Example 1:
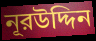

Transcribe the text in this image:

নূরউদ্দিন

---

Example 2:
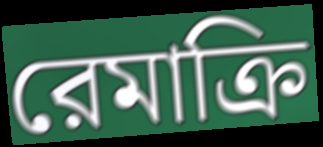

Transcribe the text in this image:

রেমাক্রি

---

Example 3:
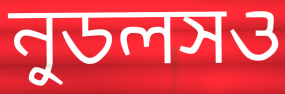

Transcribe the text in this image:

নুডলসও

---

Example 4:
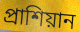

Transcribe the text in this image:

প্রাশিয়ান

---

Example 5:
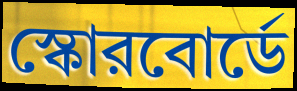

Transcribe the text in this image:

স্কোরবোর্ডে